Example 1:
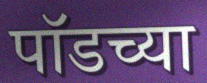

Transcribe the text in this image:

पॉडच्या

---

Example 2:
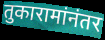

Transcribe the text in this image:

तुकारामांनंतर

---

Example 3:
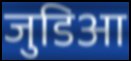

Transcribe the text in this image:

जुडिआ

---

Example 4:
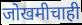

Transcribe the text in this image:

जोखमीचाही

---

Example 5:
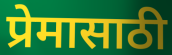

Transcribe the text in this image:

प्रेमासाठी